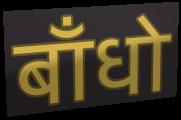
बाँधो